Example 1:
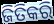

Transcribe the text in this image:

ଜିତିକରି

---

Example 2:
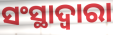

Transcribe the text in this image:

ସଂସ୍ଥାଦ୍ଵାରା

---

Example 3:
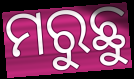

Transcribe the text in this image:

ମରୁଛୁ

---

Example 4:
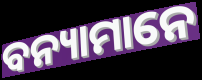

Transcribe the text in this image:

ବନ୍ୟାମାନେ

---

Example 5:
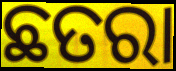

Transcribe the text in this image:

ଛତରା